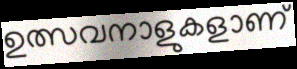
ഉത്സവനാളുകളാണ്